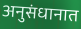
अनुसंधानात